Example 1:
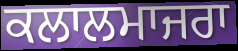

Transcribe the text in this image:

ਕਲਾਲਮਾਜਰਾ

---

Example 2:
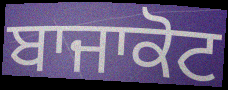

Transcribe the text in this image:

ਬਾਜਾਕੋਟ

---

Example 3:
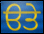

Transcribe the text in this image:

ੳਤੇ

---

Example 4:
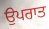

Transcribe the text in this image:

ਉਪਰਾਤ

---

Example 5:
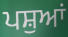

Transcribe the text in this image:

ਪਸ਼ੁਆਂ